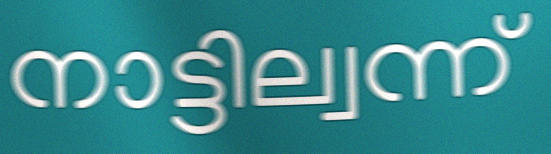
നാട്ടില്വന്ന്